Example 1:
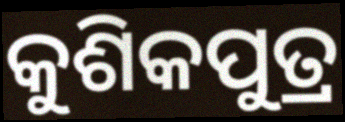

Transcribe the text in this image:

କୁଶିକପୁତ୍ର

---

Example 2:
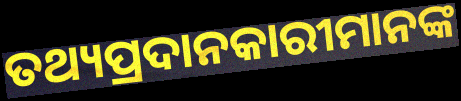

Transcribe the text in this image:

ତଥ୍ୟପ୍ରଦାନକାରୀମାନଙ୍କ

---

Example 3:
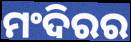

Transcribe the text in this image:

ମଂଦିରର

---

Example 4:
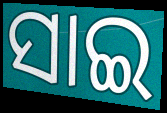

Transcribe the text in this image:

ସାଇ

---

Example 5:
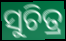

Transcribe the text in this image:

ସୁଚିତ୍ର